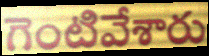
గెంటివేశారు